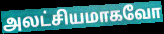
அலட்சியமாகவோ